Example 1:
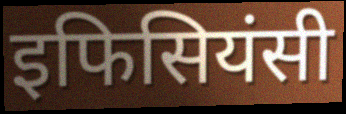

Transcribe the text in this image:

इफिसियंसी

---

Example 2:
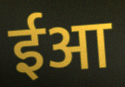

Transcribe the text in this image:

ईआ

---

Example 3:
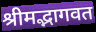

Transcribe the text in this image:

श्रीमद्भागवत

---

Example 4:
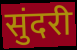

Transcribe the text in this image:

सुंदरी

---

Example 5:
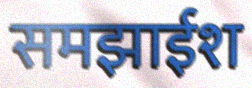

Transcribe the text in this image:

समझाईश